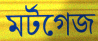
মর্টগেজ